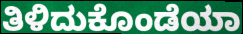
ತಿಳಿದುಕೊಂಡೆಯಾ